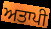
ਅਤਾਪੀ